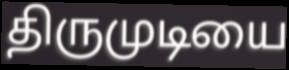
திருமுடியை